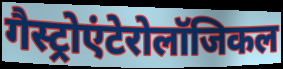
गैस्ट्रोएंटेरोलॉजिकल